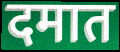
दमात